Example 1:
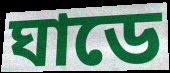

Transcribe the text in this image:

ঘাডে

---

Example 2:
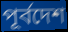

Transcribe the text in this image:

পূর্বদেশ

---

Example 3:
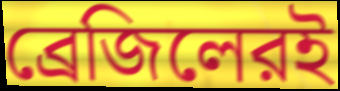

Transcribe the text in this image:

ব্রেজিলেরই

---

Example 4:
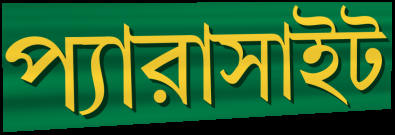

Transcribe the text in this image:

প্যারাসাইট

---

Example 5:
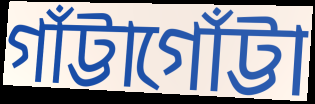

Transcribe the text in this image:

গাঁট্টাগোঁট্টা